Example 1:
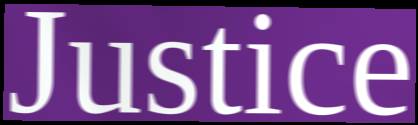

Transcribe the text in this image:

Justice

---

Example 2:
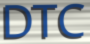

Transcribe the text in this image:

DTC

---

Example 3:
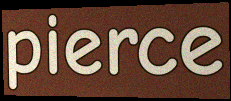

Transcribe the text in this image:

pierce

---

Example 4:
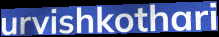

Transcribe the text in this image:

urvishkothari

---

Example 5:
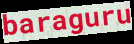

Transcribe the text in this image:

baraguru